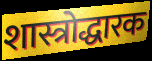
शास्त्रोद्धारक